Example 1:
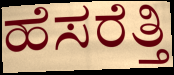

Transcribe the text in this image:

ಹೆಸರೆತ್ತಿ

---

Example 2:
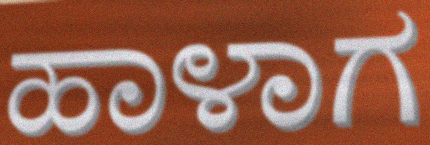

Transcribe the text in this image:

ಹಾಳಾಗ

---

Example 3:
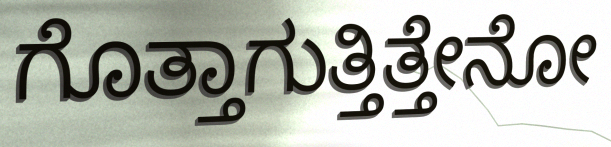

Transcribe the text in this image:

ಗೊತ್ತಾಗುತ್ತಿತ್ತೇನೋ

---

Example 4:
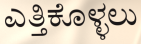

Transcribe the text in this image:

ಎತ್ತಿಕೊಳ್ಳಲು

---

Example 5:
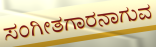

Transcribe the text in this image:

ಸಂಗೀತಗಾರನಾಗುವ